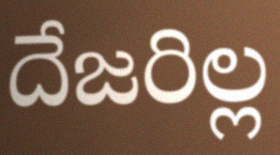
దేజరిల్ల